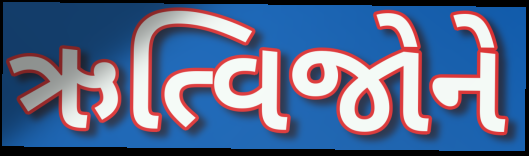
ઋત્વિજોને